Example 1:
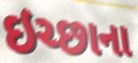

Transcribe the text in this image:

ઇચ્છાના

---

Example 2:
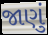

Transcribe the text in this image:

જાણું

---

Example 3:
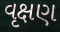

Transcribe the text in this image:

વૃક્ષણ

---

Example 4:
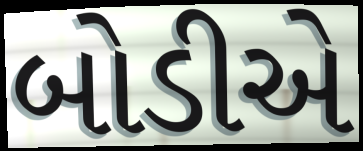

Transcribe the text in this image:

બોડીએ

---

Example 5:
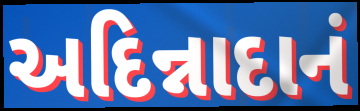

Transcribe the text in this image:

અદિન્નાદાનં